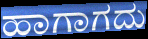
ಹಾಗಾಗದು